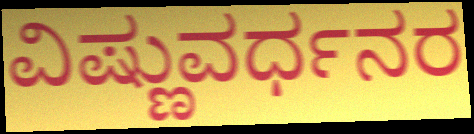
ವಿಷ್ಣುವರ್ಧನರ